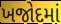
ખજોદમાં